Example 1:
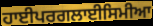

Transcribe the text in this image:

ਹਾਈਪਰਗਲਾਈਸਿਮੀਆ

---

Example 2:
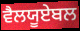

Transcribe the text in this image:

ਵੈਲਯੂਏਬਲ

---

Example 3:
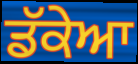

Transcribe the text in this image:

ਡੱਕੇਆ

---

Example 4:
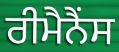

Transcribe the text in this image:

ਰੀਮੈਨੈਂਸ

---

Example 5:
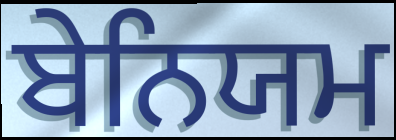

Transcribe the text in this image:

ਬੇਨਿਯਮ